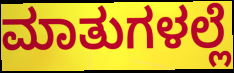
ಮಾತುಗಳಲ್ಲೆ